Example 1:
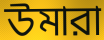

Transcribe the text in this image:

উমারা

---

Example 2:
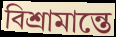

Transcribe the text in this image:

বিশ্রামান্তে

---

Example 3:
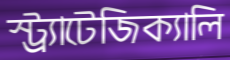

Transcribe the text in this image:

স্ট্র্যাটেজিক্যালি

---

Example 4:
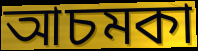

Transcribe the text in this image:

আচমকা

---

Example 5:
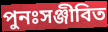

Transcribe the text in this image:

পুনঃসঞ্জীবিত